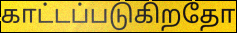
காட்டப்படுகிறதோ